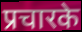
प्रचारके